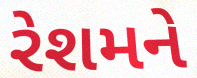
રેશમને